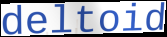
deltoid